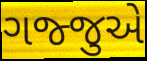
ગજ્જુએ